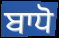
ਬਾਧੋ